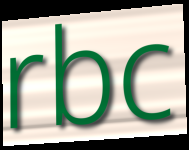
rbc